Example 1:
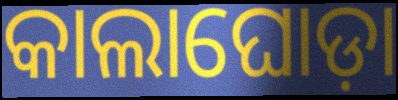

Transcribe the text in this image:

କାଲାଘୋଡ଼ା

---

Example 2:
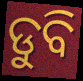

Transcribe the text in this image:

ଡୁବି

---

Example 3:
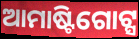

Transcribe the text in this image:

ଆମାଷ୍ଟିଗୋଟ୍ସ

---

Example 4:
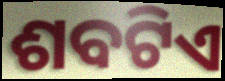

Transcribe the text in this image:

ଶବଟିଏ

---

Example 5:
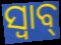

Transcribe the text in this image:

ସ୍ବାବ୍